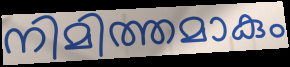
നിമിത്തമാകും